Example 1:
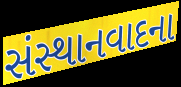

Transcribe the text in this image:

સંસ્થાનવાદના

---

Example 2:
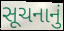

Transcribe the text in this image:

સૂચનાનું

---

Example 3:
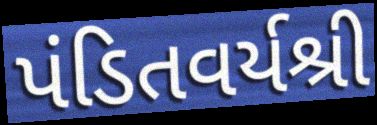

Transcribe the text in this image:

પંડિતવર્યશ્રી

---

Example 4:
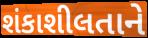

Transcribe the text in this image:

શંકાશીલતાને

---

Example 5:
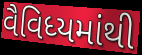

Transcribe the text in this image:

વૈવિધ્યમાંથી